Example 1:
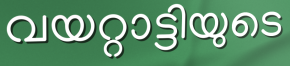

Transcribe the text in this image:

വയറ്റാട്ടിയുടെ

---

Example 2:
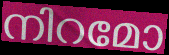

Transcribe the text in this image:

നിറമോ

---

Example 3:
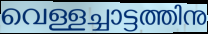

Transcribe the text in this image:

വെള്ളച്ചാട്ടത്തിനു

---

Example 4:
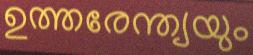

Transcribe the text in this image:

ഉത്തരേന്ത്യയും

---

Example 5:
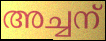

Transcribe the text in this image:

അച്ചന്